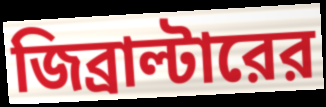
জিব্রাল্টারের